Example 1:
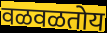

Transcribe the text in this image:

वळवळतोय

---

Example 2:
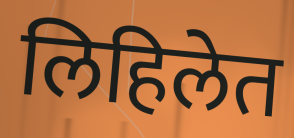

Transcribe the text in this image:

लिहिलेत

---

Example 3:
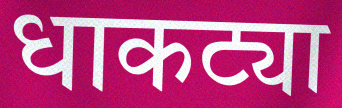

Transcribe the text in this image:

धाकट्या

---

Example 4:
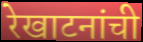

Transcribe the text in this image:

रेखाटनांची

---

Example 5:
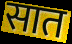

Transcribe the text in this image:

सात